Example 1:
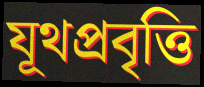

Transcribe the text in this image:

যূথপ্রবৃত্তি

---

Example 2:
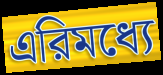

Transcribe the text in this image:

এরিমধ্যে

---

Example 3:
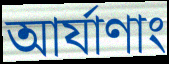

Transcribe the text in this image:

আর্যাণাং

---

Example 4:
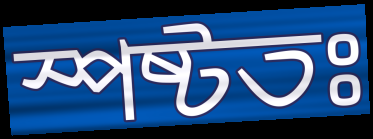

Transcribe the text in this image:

স্পষ্টতঃ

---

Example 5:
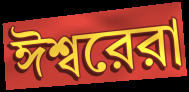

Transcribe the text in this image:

ঈশ্বরেরা